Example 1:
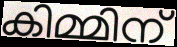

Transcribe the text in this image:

കിമ്മിന്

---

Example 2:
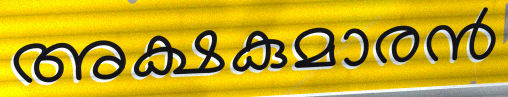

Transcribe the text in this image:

അക്ഷകുമാരൻ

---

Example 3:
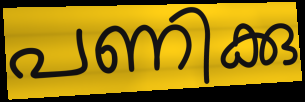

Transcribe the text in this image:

പണിക്കു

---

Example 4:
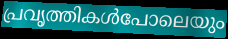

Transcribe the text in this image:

പ്രവൃത്തികൾപോലെയും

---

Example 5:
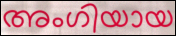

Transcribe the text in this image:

അംഗിയായ